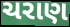
ચરાણ